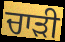
ਚਾਡ਼ੀ